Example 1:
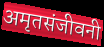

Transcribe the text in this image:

अमृतसंजीवनी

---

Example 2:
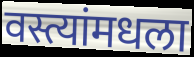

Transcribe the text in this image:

वस्त्यांमधला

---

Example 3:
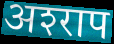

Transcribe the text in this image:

अश्राप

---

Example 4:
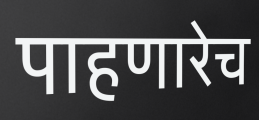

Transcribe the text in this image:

पाहणारेच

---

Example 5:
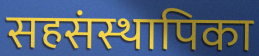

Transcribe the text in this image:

सहसंस्थापिका